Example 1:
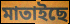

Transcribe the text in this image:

মাতাইছে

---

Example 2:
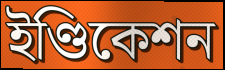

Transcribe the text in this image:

ইণ্ডিকেশন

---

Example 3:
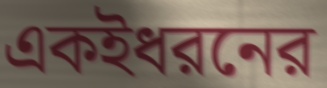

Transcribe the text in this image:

একইধরনের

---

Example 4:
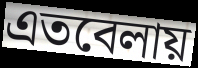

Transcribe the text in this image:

এতবেলায়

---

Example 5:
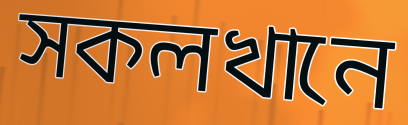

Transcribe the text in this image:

সকলখানে